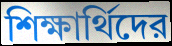
শিক্ষার্থিদের